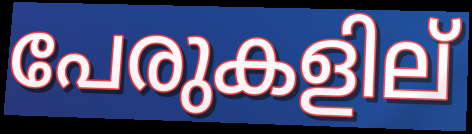
പേരുകളില്